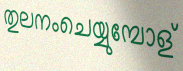
തുലനംചെയ്യുമ്പോള്